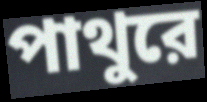
পাথুরে